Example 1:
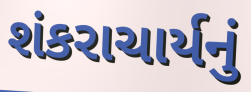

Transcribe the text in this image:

શંકરાચાર્યનું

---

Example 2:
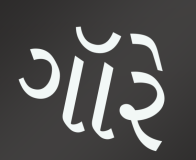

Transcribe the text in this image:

ગૉરે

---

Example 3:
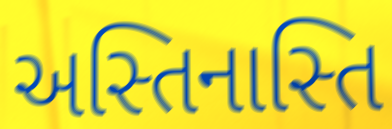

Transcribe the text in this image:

અસ્તિનાસ્તિ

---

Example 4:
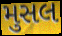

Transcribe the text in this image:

મુસલ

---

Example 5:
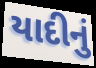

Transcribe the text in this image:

યાદીનું